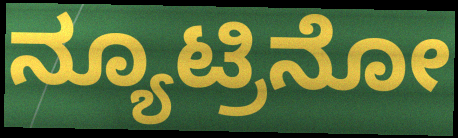
ನ್ಯೂಟ್ರಿನೋ